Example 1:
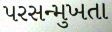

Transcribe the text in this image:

પરસન્મુખતા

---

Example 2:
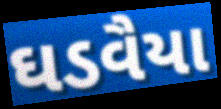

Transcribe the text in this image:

ઘડવૈયા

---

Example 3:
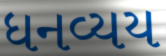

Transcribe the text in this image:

ધનવ્યય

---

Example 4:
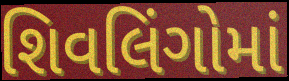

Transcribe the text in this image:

શિવલિંગોમાં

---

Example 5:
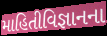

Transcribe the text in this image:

માહિતીવિજ્ઞાનના